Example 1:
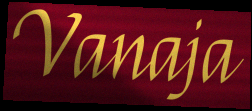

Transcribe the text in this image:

Vanaja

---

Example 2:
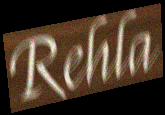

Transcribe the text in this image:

Rehla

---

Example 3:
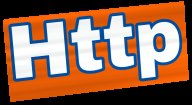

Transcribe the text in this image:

Http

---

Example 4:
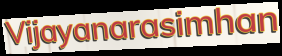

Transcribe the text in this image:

Vijayanarasimhan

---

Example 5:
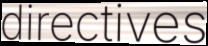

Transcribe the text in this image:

directives